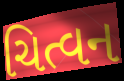
ચિત્વન